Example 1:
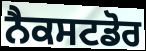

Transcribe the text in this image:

ਨੈਕਸਟਡੋਰ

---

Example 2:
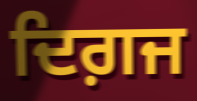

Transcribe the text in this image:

ਦਿਗ਼ਜ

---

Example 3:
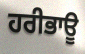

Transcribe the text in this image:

ਹਰੀਭਾਊ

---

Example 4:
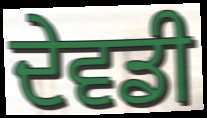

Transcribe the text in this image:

ਦੇਵਡੀ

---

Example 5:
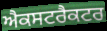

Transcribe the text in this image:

ਐਕਸਟਰੈਕਟਰ